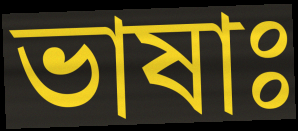
ভাষাঃ